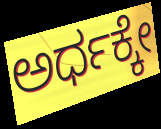
ಅರ್ಧಕ್ಕೇ